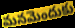
మనమెందుకు